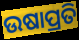
ଉଷାପ୍ରତି